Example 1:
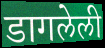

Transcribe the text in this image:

डागलेली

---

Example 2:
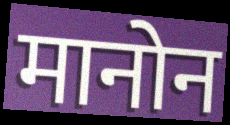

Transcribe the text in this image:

मानोन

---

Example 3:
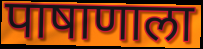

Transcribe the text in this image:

पाषाणाला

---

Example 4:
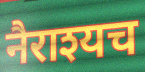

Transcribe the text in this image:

नैराश्यच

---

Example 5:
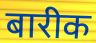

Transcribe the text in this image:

बारीक